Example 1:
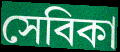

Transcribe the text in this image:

সেবিকা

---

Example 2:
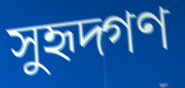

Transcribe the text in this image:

সুহৃদ্গণ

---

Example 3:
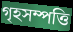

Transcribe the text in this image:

গৃহসম্পত্তি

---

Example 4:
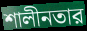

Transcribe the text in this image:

শালীনতার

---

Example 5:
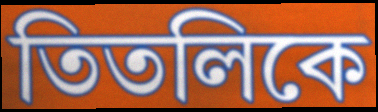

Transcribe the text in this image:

তিতলিকে